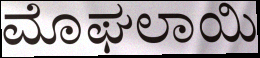
ಮೊಘಲಾಯಿ